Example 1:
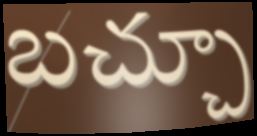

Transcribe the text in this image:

బచ్చూ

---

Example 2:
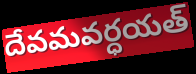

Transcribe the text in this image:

దేవమవర్ధయత్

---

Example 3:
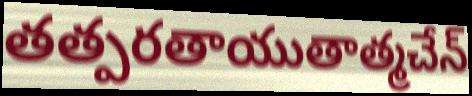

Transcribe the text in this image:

తత్పరతాయుతాత్మచేన్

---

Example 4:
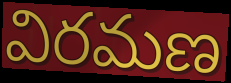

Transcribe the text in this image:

విరమణ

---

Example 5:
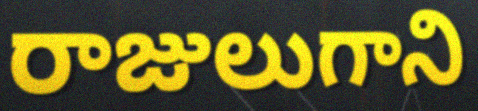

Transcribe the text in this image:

రాజులుగాని